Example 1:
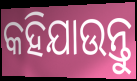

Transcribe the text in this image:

କହିଯାଉନ୍ତୁ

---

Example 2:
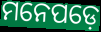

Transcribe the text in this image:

ମନେପଡ଼େ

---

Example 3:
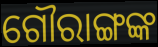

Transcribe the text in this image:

ଗୌରାଙ୍ଗଙ୍କ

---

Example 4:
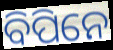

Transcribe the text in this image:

ବିପିନେ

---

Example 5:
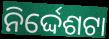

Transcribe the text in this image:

ନିର୍ଦ୍ଦେଶଟା